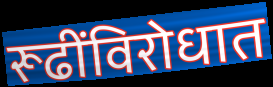
रूढींविरोधात